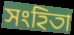
সংহিতা